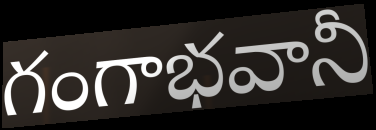
గంగాభవానీ